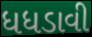
ધધડાવી